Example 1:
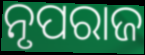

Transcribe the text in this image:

ନୃପରାଜ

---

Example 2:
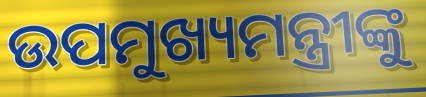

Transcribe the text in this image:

ଉପମୁଖ୍ୟମନ୍ତ୍ରୀଙ୍କୁ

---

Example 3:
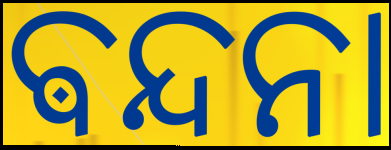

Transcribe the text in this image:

ଵନ୍ଦନା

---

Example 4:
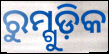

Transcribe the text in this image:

ରୁମ୍ଗୁଡ଼ିକ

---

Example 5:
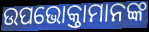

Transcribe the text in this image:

ଉପଭୋକ୍ତାମାନଙ୍କ